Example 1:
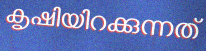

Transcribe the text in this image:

കൃഷിയിറക്കുന്നത്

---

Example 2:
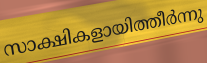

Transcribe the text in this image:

സാക്ഷികളായിത്തീർന്നു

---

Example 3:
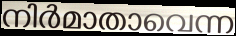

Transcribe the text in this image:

നിർമാതാവെന്ന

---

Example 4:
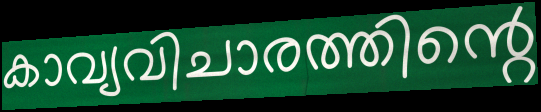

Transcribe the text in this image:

കാവ്യവിചാരത്തിന്റെ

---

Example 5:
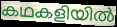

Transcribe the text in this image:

കഥകളിയിൽ